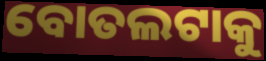
ବୋତଲଟାକୁ